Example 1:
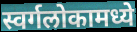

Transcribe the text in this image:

स्वर्गलोकामध्ये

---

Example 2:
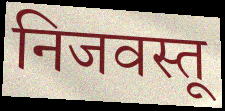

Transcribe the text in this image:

निजवस्तू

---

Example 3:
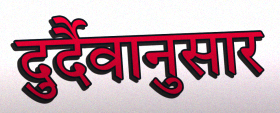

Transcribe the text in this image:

दुर्दैवानुसार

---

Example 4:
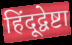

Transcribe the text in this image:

हिंदूद्वेष्टा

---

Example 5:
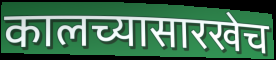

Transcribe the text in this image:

कालच्यासारखेच